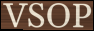
VSOP